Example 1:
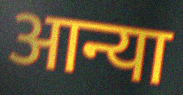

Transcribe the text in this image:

आन्या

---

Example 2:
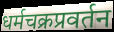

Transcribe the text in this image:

धर्मचक्रप्रवर्तन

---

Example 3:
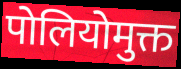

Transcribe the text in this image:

पोलियोमुक्त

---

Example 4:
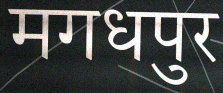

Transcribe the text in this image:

मगधपुर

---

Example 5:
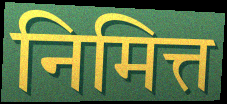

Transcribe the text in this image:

निमित्त